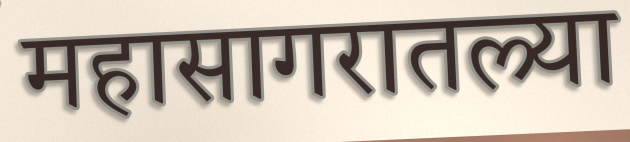
महासागरातल्या